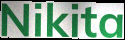
Nikita